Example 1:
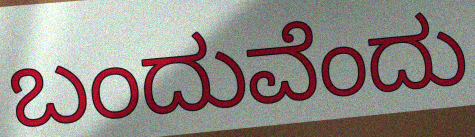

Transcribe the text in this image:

ಬಂದುವೆಂದು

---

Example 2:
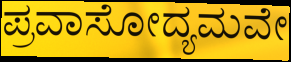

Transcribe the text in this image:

ಪ್ರವಾಸೋದ್ಯಮವೇ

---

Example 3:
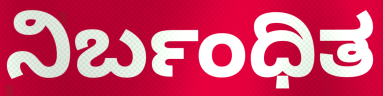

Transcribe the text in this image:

ನಿರ್ಬಂಧಿತ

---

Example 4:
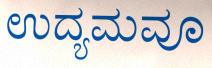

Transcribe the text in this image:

ಉದ್ಯಮವೂ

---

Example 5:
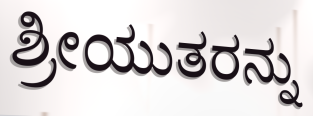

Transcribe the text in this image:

ಶ್ರೀಯುತರನ್ನು